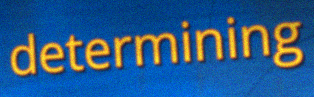
determining